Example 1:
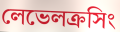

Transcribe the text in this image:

লেভেলক্রসিং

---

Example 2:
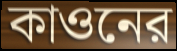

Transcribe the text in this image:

কাওনের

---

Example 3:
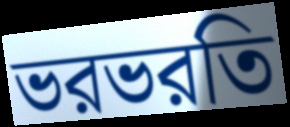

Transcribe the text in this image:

ভরভরতি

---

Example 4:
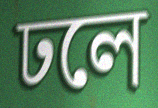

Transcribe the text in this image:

ঢলে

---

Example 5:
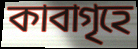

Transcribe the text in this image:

কাবাগৃহে